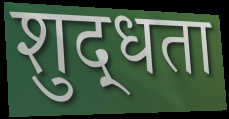
शुद्धता